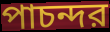
পাচন্দর